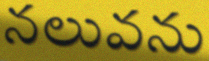
నలువను